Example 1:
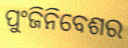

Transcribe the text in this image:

ପୁଂଜିନିବେଶର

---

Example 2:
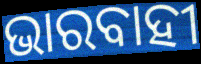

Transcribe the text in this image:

ଭାରବାହୀ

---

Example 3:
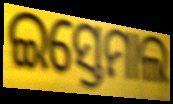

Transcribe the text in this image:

ଇସ୍ତେମାଲ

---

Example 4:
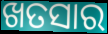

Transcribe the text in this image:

ଖତସାର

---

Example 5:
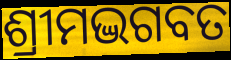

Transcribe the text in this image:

ଶ୍ରୀମଦ୍ଭଗବତ